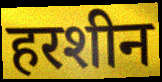
हरशीन